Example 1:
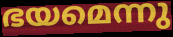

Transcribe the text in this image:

ഭയമെന്നു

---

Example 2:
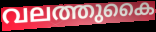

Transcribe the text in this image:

വലത്തുകൈ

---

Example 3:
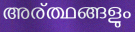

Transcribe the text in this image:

അര്ത്ഥങ്ങളും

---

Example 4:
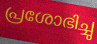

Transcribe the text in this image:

പ്രശോഭിച്ചു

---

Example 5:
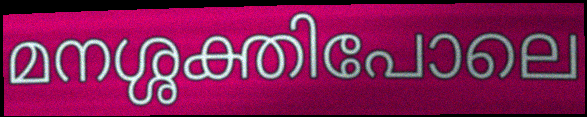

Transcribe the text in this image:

മനശ്ശക്തിപോലെ